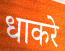
धाकरे